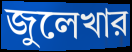
জুলেখার